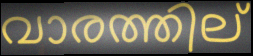
വാരത്തില്